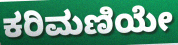
ಕರಿಮಣಿಯೇ